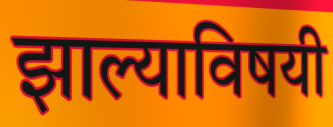
झाल्याविषयी